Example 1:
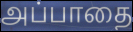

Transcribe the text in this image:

அப்பாதை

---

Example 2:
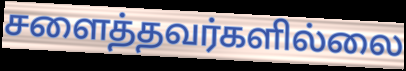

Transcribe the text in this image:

சளைத்தவர்களில்லை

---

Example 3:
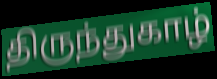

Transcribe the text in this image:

திருந்துகாழ்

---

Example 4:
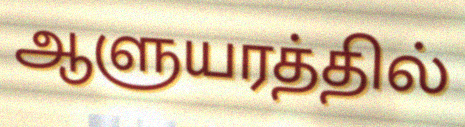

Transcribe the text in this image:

ஆளுயரத்தில்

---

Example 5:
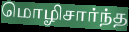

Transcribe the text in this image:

மொழிசார்ந்த